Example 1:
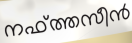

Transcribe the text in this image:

നഫ്ത്തസീൻ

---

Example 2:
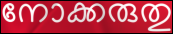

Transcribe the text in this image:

നോക്കരുതു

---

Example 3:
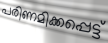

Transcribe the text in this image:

പരിണമിക്കപ്പെട്ട്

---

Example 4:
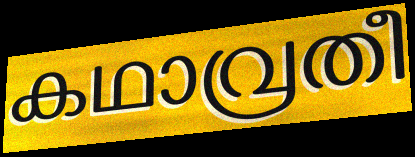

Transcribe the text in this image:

കഥാവ്രതീ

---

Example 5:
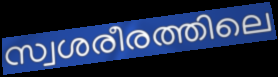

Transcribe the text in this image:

സ്വശരീരത്തിലെ